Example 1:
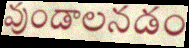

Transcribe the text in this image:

వుండాలనడం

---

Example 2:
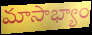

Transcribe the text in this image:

మాసాభ్యాం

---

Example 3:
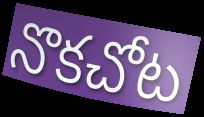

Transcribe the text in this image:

నొకచోట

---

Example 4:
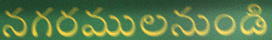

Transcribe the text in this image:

నగరములనుండి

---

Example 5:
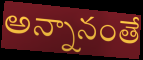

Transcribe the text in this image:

అన్నానంతే